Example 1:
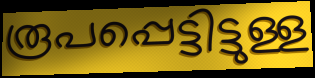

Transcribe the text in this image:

രൂപപ്പെട്ടിട്ടുള്ള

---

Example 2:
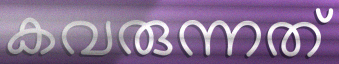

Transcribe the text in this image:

കവരുന്നത്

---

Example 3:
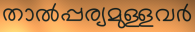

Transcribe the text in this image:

താൽപ്പര്യമുള്ളവർ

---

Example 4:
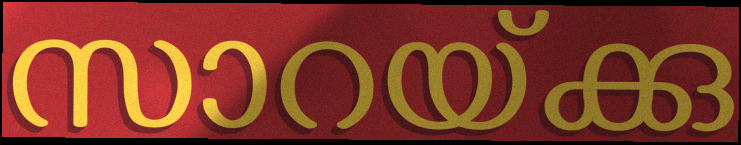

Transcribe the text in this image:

സാറയ്‌ക്കു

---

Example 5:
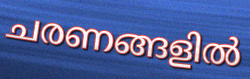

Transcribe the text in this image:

ചരണങ്ങളിൽ